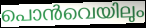
പൊൻവെയിലും